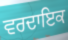
ਵਰਦਾਇਕ